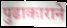
पुढाकाराने